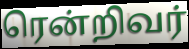
ரென்றிவர்